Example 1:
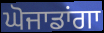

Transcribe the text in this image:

ਘੋਜਾਡਾਂਗਾ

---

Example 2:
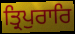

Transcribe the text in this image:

ਤ੍ਰਿਪੁਰਾਰਿ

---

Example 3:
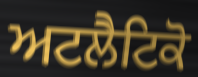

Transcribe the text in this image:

ਅਟਲੈਟਿਕੋ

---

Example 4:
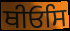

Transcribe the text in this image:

ਥੀਓਸਿ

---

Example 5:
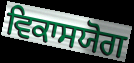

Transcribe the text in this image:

ਵਿਕਾਸਯੋਗ